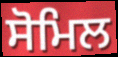
ਸੋਮਿਲ